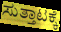
ಸುತ್ತಾಟಕ್ಕೆ